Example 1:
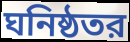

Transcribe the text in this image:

ঘনিষ্ঠতর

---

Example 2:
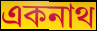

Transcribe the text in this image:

একনাথ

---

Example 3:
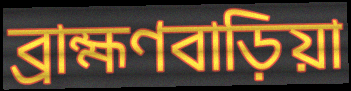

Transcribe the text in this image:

ব্রাহ্মণবাড়িয়া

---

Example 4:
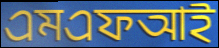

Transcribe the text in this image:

এমএফআই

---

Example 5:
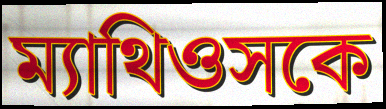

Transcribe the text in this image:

ম্যাথিওসকে